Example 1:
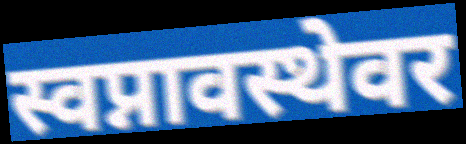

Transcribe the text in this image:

स्वप्नावस्थेवर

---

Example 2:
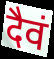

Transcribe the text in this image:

दैवं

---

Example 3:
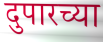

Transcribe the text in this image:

दुपारच्या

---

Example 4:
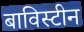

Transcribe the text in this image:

बाविस्टीन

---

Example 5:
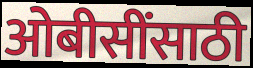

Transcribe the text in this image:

ओबीसींसाठी